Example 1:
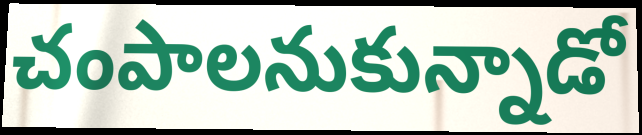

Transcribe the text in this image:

చంపాలనుకున్నాడో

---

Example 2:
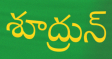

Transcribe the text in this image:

శూద్రున్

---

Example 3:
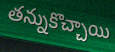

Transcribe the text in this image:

తన్నుకొచ్చాయి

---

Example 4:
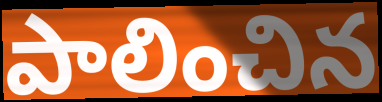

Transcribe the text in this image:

పాలించిన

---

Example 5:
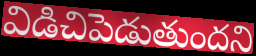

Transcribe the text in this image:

విడిచిపెడుతుందని